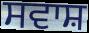
ਸਵਾਸ਼